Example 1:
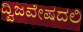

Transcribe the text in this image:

ದ್ವಿಜವೇಷದಲಿ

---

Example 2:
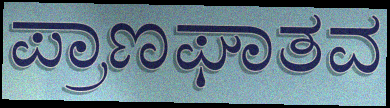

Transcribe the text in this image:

ಪ್ರಾಣಘಾತವ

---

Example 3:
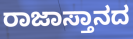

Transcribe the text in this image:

ರಾಜಾಸ್ತಾನದ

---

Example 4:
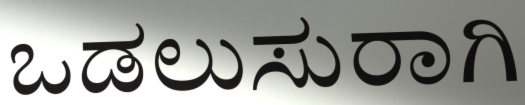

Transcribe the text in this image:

ಒಡಲುಸುರಾಗಿ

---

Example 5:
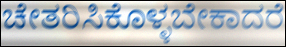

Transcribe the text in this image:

ಚೇತರಿಸಿಕೊಳ್ಳಬೇಕಾದರೆ